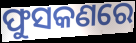
ଫୁସକଣରେ